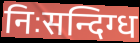
निःसन्दिग्ध